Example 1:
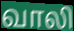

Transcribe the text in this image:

வாலி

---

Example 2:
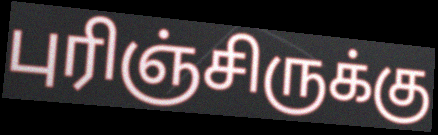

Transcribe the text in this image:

புரிஞ்சிருக்கு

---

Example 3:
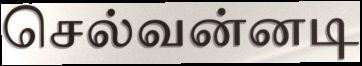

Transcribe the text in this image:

செல்வன்னடி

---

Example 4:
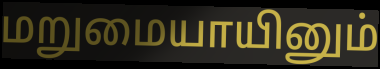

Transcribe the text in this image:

மறுமையாயினும்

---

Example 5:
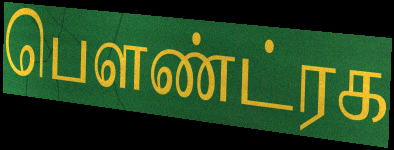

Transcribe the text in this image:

பௌண்ட்ரக